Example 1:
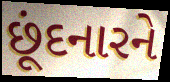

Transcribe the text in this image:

છૂંદનારને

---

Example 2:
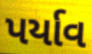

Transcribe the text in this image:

પર્યાવ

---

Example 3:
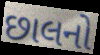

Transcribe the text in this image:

છાલનો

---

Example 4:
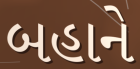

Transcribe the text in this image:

બહાને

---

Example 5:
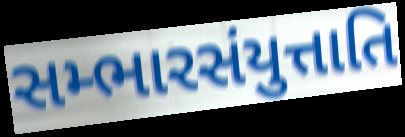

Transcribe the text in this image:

સમ્ભારસંયુત્તાતિ